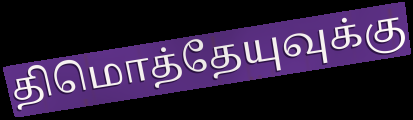
திமொத்தேயுவுக்கு